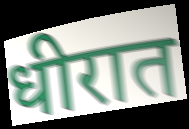
धीरात